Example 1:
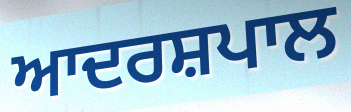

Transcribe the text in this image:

ਆਦਰਸ਼ਪਾਲ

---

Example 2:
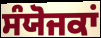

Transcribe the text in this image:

ਸੰਯੋਜਕਾਂ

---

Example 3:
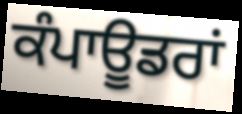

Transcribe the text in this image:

ਕੰਪਾਊਡਰਾਂ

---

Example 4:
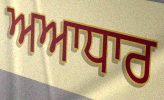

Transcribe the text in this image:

ਅਆਧਾਰ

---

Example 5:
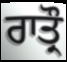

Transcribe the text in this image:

ਰਾਤ੍ਰੌ